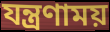
যন্ত্রণাময়